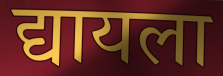
द्यायला